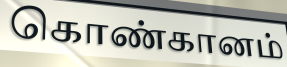
கொண்கானம்